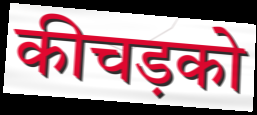
कीचड़को